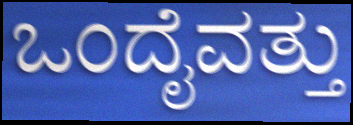
ಒಂದೈವತ್ತು